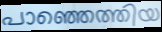
പാഞ്ഞെത്തിയ